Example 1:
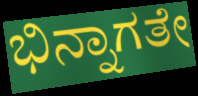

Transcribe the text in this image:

ಭಿನ್ನಾಗತೇ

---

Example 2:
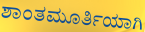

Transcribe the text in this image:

ಶಾಂತಮೂರ್ತಿಯಾಗಿ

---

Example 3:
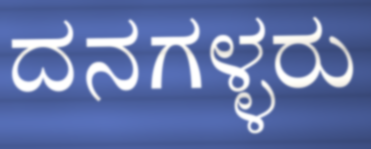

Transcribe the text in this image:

ದನಗಳ್ಳರು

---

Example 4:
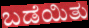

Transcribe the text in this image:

ಬಡೆಯಿತು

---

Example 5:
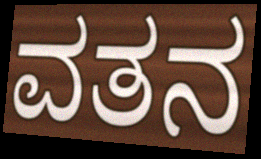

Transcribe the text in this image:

ವತನ